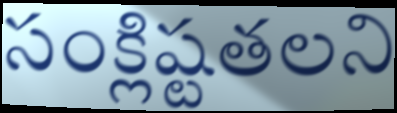
సంక్లిష్టతలని